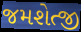
જમશેત્જી